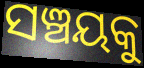
ସଞ୍ଚୟକୁ